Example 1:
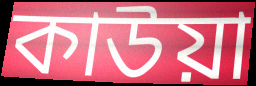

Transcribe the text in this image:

কাউয়া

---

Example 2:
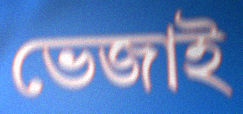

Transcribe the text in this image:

ভেজাই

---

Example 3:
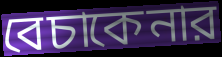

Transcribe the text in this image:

বেচাকেনার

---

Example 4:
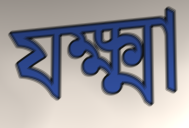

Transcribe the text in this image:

যক্ষ্মা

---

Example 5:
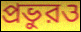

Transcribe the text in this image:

প্রভুরও